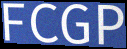
FCGP